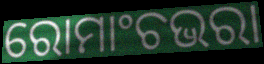
ରୋମାଂଚଭରା